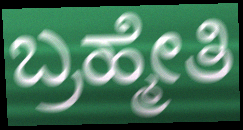
ಬ್ರಹ್ಮೇತಿ